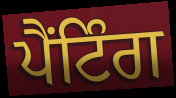
ਪੈਂਟਿੰਗ